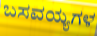
ಬಸವಯ್ಯಗಳ